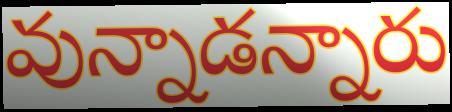
వున్నాడన్నారు